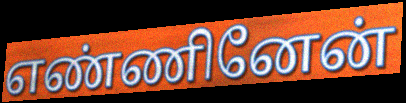
எண்ணினேன்